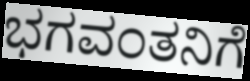
ಭಗವಂತನಿಗೆ